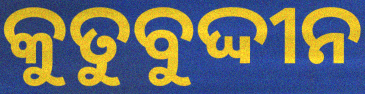
କୁତୁବୁଦ୍ଦୀନ